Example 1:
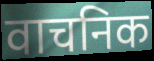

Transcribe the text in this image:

वाचनिक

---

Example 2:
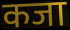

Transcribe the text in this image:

कजा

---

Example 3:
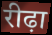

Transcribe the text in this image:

रीढ़ा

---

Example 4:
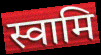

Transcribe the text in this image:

स्वामि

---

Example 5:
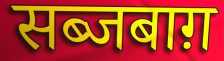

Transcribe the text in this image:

सब्जबाग़